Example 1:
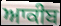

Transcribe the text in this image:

ਆਕੀਬ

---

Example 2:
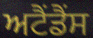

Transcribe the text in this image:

ਅਟੈਂਡੈਂਸ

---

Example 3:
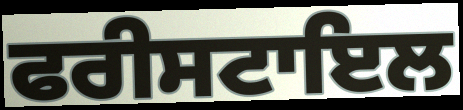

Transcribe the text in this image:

ਫਰੀਸਟਾਇਲ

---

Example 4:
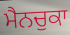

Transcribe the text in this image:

ਮੈਨਚੁਕਾ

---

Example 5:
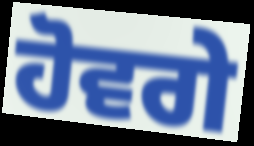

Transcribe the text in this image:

ਹੋਵਗੇ